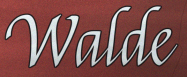
Walde